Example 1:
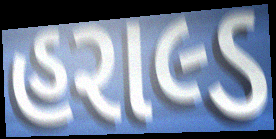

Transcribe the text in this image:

હરાલ્ડ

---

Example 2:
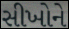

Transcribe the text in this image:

સીખોને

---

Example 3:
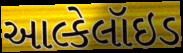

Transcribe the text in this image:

આલ્કેલૉઇડ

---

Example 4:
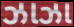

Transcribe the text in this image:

ઝાઝા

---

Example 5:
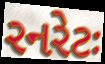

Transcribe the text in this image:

રનરેટઃ